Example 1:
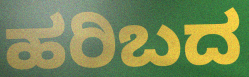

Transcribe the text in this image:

ಹರಿಬದ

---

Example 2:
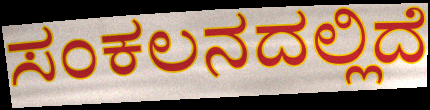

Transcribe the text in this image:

ಸಂಕಲನದಲ್ಲಿದೆ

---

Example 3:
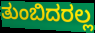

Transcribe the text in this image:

ತುಂಬಿದರಲ್ಲ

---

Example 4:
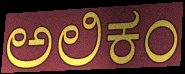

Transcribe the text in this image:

ಅಲಿಕಂ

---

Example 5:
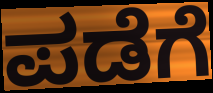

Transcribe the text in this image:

ಪಡೆಗೆ